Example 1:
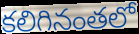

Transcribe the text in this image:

కలిగినంతలో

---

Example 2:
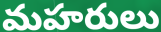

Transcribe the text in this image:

మహరులు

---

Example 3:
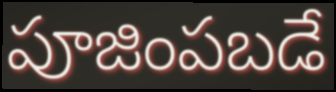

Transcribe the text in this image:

పూజింపబడే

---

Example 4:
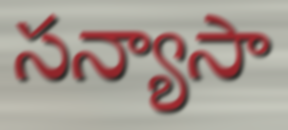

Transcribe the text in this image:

సన్యాసా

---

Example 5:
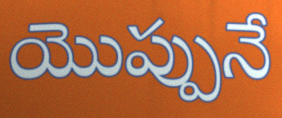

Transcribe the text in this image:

యొప్పునే